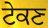
ਟੇਕਣ